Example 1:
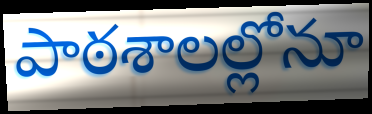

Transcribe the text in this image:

పాఠశాలల్లోనూ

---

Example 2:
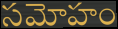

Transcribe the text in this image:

సమోహం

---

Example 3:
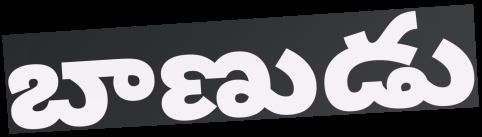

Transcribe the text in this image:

బాణుడు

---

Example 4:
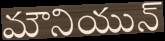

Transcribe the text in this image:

మౌనియున్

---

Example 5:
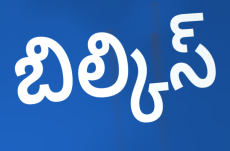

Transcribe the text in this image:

బిల్కిస్